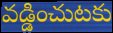
వడ్డించుటకు